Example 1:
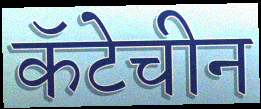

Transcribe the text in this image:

कॅटेचीन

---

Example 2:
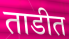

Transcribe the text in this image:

ताडीत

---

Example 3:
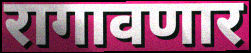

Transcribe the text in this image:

रागावणार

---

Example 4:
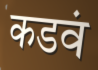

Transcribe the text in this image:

कडवं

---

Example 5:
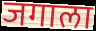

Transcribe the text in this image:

जगाला